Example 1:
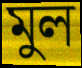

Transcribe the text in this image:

মুল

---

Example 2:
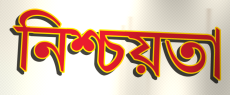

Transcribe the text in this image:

নিশ্চয়তা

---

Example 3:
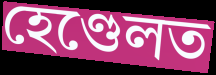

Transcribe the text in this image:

হেণ্ডেলত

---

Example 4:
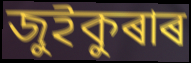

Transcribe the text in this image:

জুইকুৰাৰ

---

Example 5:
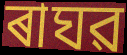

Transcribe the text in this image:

ৰাঘৱ